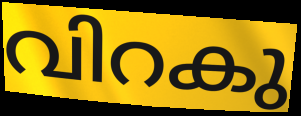
വിറകു